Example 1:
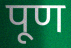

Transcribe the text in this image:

पूण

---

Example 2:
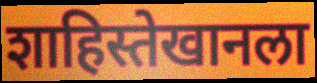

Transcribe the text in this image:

शाहिस्तेखानला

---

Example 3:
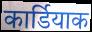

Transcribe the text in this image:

कार्डियाक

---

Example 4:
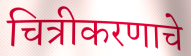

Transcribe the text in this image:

चित्रीकरणाचे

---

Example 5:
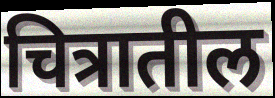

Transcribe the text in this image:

चित्रातील